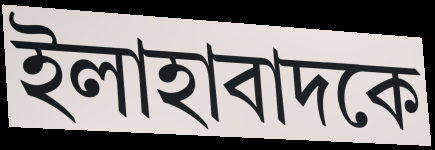
ইলাহাবাদকে